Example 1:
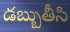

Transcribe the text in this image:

డబ్బుతీసి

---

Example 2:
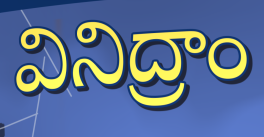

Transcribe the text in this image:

వినిద్రాం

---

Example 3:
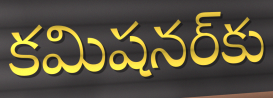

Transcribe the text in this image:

కమిషనర్‌కు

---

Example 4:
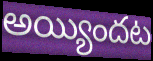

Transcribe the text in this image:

అయ్యిందట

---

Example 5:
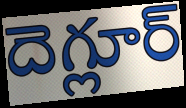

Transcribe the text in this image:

దెగ్లూర్